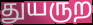
துயருற